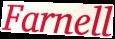
Farnell